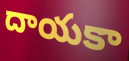
దాయకా